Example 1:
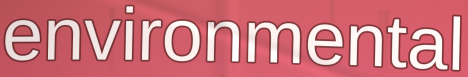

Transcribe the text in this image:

environmental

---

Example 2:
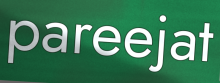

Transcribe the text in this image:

pareejat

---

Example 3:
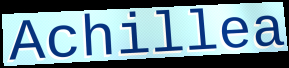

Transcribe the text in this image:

Achillea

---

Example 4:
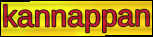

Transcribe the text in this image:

kannappan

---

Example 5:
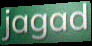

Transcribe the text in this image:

jagad